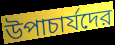
উপাচার্যদের